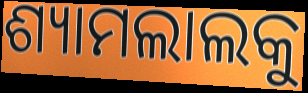
ଶ୍ୟାମଲାଲକୁ